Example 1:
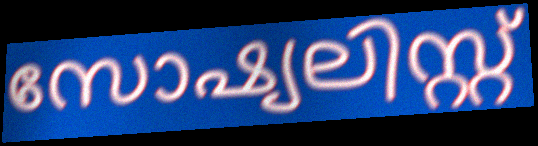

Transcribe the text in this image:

സോഷ്യലിസ്റ്റ്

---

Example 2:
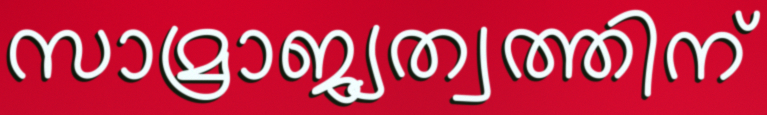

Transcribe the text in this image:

സാമ്രാജ്യത്വത്തിന്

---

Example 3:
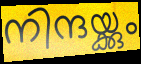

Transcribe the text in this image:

നിന്ദയ്ക്കും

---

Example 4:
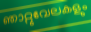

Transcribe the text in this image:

ഞാറ്റുവേലകളും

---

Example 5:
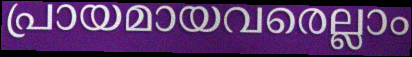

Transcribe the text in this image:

പ്രായമായവരെല്ലാം